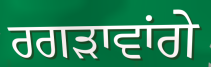
ਰਗੜਾਵਾਂਗੇ